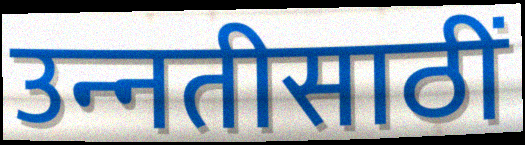
उन्नतीसाठीं